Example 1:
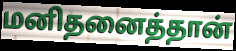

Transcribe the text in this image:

மனிதனைத்தான்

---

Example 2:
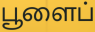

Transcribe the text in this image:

பூளைப்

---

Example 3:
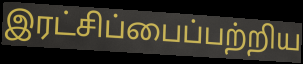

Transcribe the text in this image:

இரட்சிப்பைப்பற்றிய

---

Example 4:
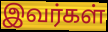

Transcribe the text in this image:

இவர்கள்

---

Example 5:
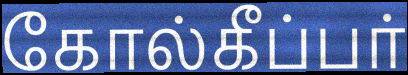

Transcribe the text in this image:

கோல்கீப்பர்